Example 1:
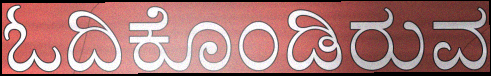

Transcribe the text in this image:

ಓದಿಕೊಂಡಿರುವ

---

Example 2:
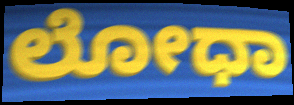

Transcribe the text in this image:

ಲೋಧಾ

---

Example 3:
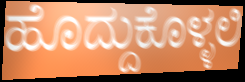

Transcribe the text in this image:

ಹೊದ್ದುಕೊಳ್ಳಲಿ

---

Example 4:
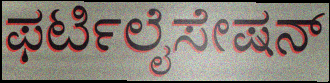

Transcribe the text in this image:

ಫರ್ಟಿಲೈಸೇಷನ್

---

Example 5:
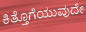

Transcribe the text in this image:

ಕಿತ್ತೊಗೆಯುವುದೇ